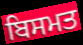
ਬਿਸਮਤ